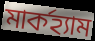
মার্কহ্যাম